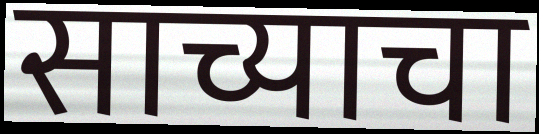
साच्याचा